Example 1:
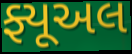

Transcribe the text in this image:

ફ્યૂઅલ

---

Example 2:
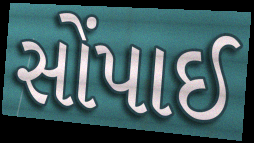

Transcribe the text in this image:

સોંપાઈ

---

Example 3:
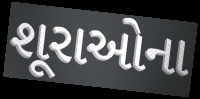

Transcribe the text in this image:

શૂરાઓના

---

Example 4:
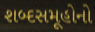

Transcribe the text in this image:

શબ્દસમૂહોનો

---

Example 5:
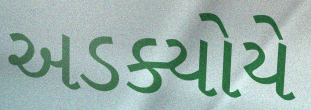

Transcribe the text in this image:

અડક્યોયે